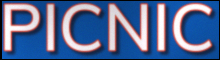
PICNIC